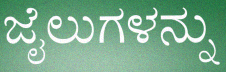
ಜೈಲುಗಳನ್ನು